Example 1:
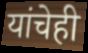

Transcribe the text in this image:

यांचेही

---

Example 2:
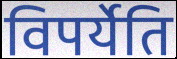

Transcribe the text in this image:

विपर्येति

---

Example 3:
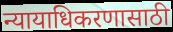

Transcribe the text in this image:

न्यायाधिकरणासाठी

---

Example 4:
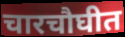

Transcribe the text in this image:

चारचौघीत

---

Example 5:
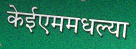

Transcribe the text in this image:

केईएममधल्या